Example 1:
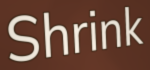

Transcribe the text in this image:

Shrink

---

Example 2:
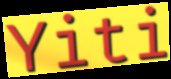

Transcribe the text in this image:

Yiti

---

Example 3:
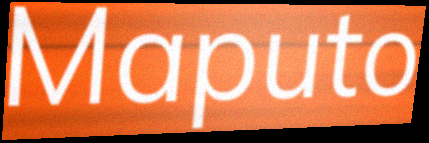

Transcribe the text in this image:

Maputo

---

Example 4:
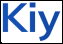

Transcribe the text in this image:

Kiy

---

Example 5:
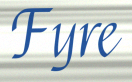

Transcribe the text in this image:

Fyre